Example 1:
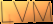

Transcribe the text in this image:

LVM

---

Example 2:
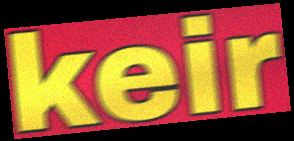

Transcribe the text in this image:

keir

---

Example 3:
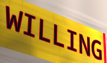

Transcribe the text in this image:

WILLING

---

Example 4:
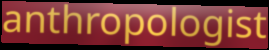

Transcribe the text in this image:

anthropologist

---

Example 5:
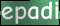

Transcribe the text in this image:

epadi